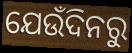
ଯେଉଁଦିନରୁ